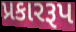
પ્રકારરૂપ